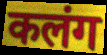
कलंग